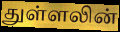
துள்ளலின்